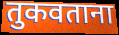
तुकवताना